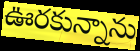
ఊరకున్నాను